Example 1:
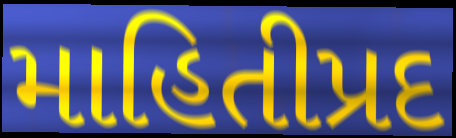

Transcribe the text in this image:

માહિતીપ્રદ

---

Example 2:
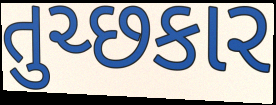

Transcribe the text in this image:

તુચ્છકાર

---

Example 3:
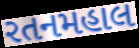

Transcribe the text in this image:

રતનમહાલ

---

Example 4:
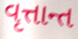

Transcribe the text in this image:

વૃત્તાન્ત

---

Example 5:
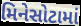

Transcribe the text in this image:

મિનેસોટામાં